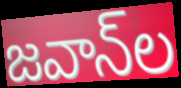
జవాన్‌ల